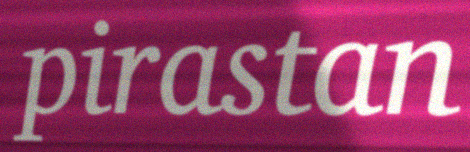
pirastan